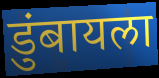
डुंबायला